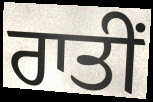
ਰਾਤੀਂ